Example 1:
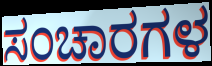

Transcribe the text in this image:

ಸಂಚಾರಗಳ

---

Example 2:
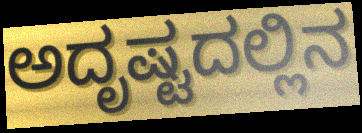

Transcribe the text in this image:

ಅದೃಷ್ಟದಲ್ಲಿನ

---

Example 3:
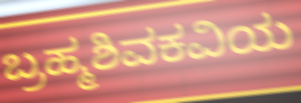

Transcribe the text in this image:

ಬ್ರಹ್ಮಶಿವಕವಿಯ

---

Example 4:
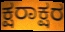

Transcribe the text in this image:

ಕ್ಷರಾಕ್ಷರ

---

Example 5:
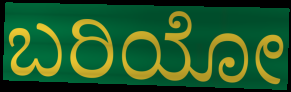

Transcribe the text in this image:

ಬರಿಯೋ